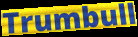
Trumbull